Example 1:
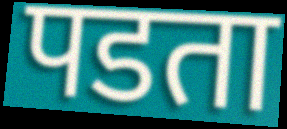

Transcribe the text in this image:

पडता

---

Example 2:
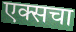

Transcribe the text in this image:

एक्सचा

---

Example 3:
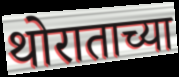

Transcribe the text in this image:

थोराताच्या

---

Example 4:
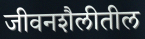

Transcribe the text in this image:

जीवनशैलीतील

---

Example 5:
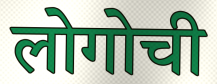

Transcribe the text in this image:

लोगोची